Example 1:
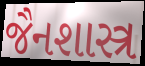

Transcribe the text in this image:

જૈનશાસ્ત્ર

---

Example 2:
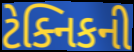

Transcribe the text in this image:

ટેક્નિકની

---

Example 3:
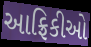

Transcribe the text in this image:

આફ્રિકીઓ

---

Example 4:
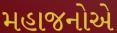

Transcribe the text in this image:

મહાજનોએ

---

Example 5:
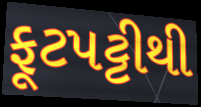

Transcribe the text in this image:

ફૂટપટ્ટીથી